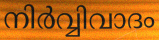
നിർവ്വിവാദം